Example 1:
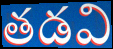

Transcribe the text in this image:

తడవి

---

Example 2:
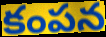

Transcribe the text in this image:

కంపన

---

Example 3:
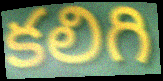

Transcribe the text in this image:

కలిగి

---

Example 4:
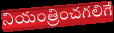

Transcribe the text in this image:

నియంత్రించగలిగే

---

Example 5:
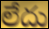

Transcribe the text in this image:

లేదు